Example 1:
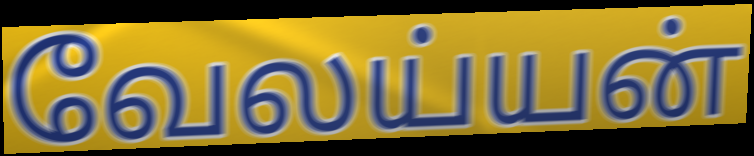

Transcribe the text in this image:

வேலய்யன்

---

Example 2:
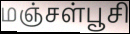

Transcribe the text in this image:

மஞ்சள்பூசி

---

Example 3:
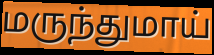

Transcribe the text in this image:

மருந்துமாய்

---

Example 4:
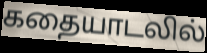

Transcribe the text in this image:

கதையாடலில்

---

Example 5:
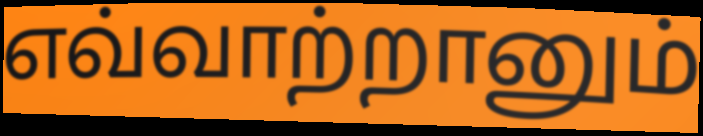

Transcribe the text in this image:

எவ்வாற்றானும்